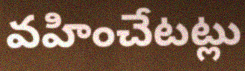
వహించేటట్లు